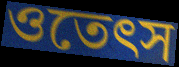
ওতেৎস